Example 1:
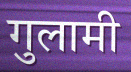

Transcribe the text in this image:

गुलामी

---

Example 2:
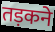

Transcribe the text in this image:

तड़कने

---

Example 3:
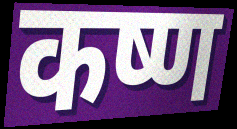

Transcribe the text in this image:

कष्ण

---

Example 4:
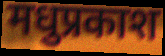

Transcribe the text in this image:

मधुप्रकाश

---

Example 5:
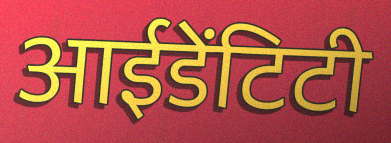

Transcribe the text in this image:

आईडेंटिटी